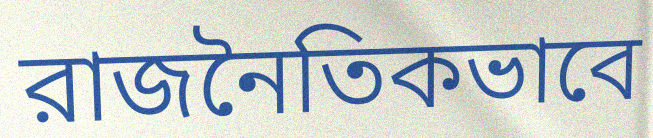
রাজনৈতিকভাবে